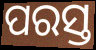
ପରସ୍ତ